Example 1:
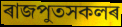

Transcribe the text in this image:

ৰাজপুতসকলৰ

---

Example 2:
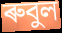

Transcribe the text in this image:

ৰুবুল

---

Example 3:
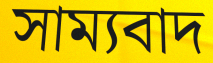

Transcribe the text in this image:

সাম্যবাদ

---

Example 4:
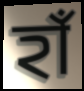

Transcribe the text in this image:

হাঁ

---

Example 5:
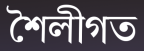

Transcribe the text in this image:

শৈলীগত